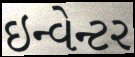
ઇન્વેન્ટર